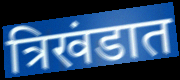
त्रिखंडात